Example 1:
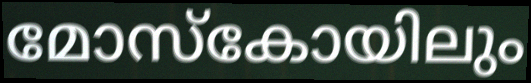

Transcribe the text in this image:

മോസ്കോയിലും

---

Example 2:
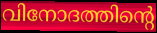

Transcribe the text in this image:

വിനോദത്തിന്റെ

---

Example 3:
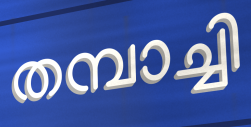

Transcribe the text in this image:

തമ്പാച്ചി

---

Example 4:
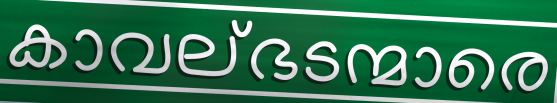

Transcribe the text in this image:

കാവല്ഭടന്മാരെ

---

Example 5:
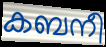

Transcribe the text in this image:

കബനീ